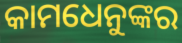
କାମଧେନୁଙ୍କର